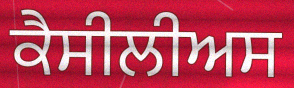
ਕੈਸੀਲੀਅਸ